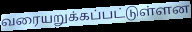
வரையறுக்கப்பட்டுள்ளன